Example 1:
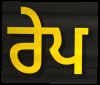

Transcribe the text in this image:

ਰੇਪ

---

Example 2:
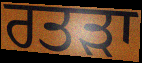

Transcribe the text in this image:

ਰਤੜਾ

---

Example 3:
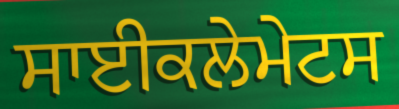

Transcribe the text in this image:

ਸਾਈਕਲੇਮੇਟਸ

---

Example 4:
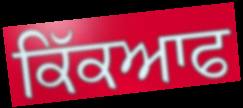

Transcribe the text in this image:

ਕਿੱਕਆਫ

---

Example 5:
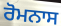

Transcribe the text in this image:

ਰੋਮਨਾਸ